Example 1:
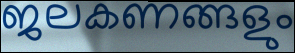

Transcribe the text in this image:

ജലകണങ്ങളും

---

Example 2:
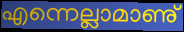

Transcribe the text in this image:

എന്നെല്ലാമാണു്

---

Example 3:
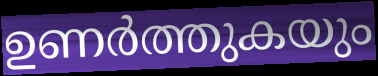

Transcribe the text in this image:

ഉണർത്തുകയും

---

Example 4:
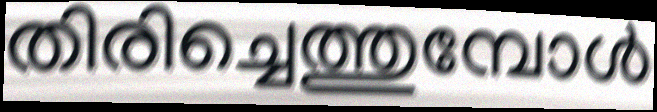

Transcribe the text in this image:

തിരിച്ചെത്തുമ്പോൾ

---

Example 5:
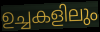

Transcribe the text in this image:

ഉച്ചകളിലും